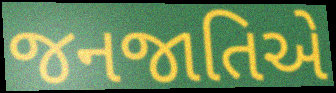
જનજાતિએ